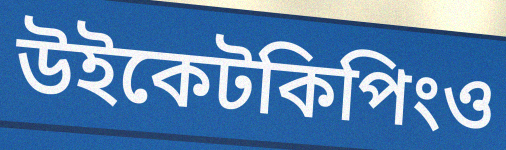
উইকেটকিপিংও